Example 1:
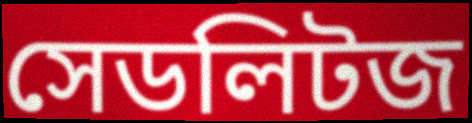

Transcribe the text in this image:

সেডলিটজ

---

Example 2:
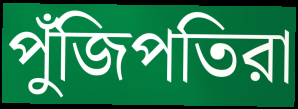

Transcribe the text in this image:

পুঁজিপতিরা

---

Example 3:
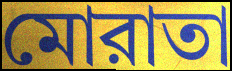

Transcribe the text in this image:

মোরাতা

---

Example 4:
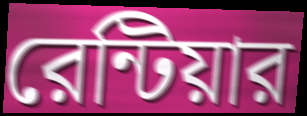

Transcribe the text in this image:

রেন্টিয়ার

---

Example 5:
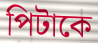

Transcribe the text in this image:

পিটাকে